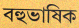
বহুভাষিক